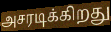
அசரடிக்கிறது